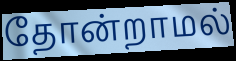
தோன்றாமல்